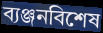
ব্যঞ্জনবিশেষ